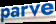
parve